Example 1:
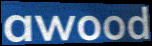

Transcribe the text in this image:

awood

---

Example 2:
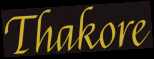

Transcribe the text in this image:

Thakore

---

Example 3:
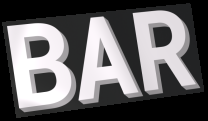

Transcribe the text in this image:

BAR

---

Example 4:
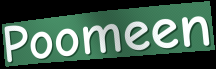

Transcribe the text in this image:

Poomeen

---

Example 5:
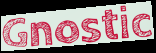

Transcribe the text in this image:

Gnostic